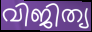
വിജിത്യ